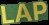
LAP